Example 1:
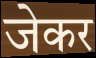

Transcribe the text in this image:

जेकर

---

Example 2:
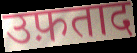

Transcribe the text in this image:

उफ़ताद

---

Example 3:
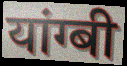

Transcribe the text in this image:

यांग्बी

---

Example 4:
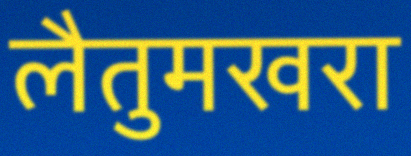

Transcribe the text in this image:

लैतुमखरा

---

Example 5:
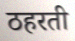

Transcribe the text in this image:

ठहरती